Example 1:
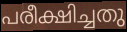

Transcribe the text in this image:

പരീക്ഷിച്ചതു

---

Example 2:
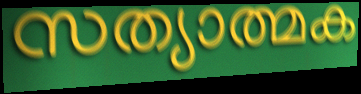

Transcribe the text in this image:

സത്യാത്മക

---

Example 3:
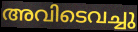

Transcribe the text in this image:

അവിടെവച്ചു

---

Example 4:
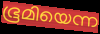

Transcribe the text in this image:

ഭൂമിയെന്ന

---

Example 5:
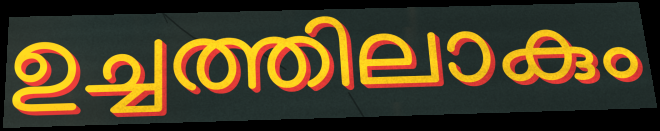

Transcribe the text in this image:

ഉച്ചത്തിലാകും